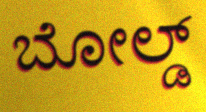
ಬೋಲ್ಡ್